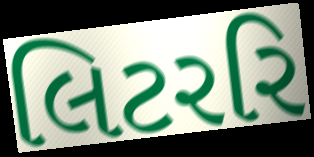
લિટરરિ